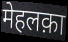
मेहलक़ा